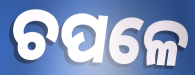
ଚପଳେ